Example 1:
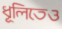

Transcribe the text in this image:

ধূলিতেও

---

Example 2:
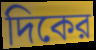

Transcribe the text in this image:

দিকের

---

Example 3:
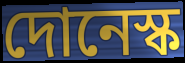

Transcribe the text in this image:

দোনেস্ক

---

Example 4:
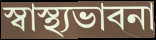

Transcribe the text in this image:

স্বাস্থ্যভাবনা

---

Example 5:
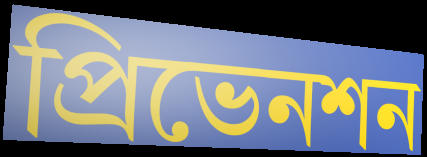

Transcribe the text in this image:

প্রিভেনশন